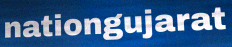
nationgujarat